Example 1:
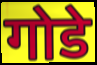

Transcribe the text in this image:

गोडे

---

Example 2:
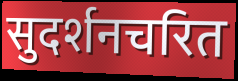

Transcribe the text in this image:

सुदर्शनचरित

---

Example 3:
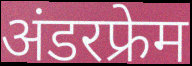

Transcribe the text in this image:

अंडरफ्रेम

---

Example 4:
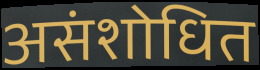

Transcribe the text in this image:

असंशोधित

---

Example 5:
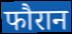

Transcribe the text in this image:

फौरान